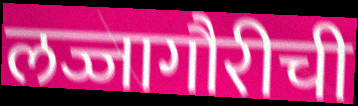
लज्जागौरीची